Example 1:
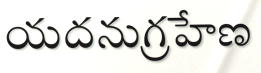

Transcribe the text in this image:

యదనుగ్రహేణ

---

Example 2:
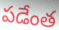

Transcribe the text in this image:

పడేంత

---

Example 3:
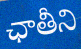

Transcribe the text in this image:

ఛాతీని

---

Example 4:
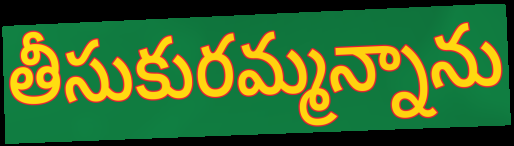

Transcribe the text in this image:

తీసుకురమ్మన్నాను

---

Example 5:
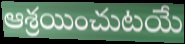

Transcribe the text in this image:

ఆశ్రయించుటయే